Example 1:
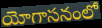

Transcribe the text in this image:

యోగాసనంలో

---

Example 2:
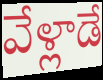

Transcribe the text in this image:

వేళ్లాడే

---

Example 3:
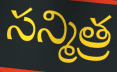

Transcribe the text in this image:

సన్మిత్ర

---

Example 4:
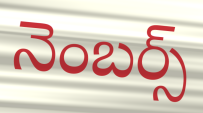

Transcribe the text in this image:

నెంబర్స్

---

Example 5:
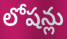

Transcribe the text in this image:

లోషన్లు